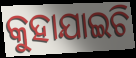
କୁହାଯାଇଚି